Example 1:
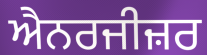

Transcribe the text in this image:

ਐਨਰਜੀਜ਼ਰ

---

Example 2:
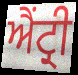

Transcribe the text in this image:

ਐਂਟ੍ਰੀ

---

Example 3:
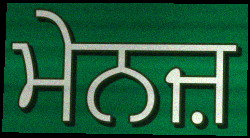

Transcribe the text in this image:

ਮੇਨਜ਼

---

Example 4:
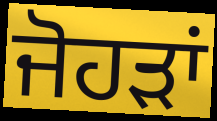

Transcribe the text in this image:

ਜੋਹੜਾਂ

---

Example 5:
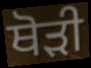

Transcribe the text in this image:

ਥੋੜੀ